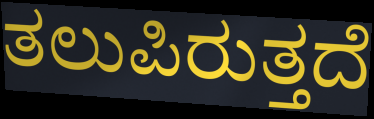
ತಲುಪಿರುತ್ತದೆ